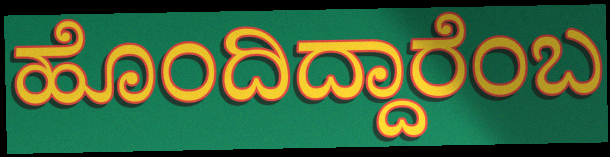
ಹೊಂದಿದ್ದಾರೆಂಬ